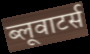
ब्लूवाटर्स